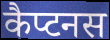
कैप्टनस